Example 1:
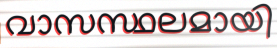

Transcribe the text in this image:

വാസസ്ഥലമായി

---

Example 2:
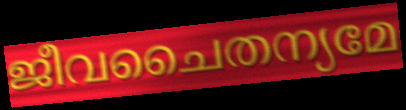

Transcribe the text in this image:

ജീവചൈതന്യമേ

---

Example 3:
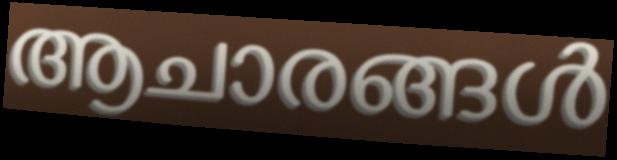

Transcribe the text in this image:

ആചാരങ്ങൾ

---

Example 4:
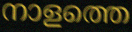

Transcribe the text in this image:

നാളത്തെ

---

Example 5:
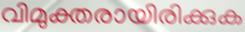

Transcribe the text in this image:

വിമുക്തരായിരിക്കുക